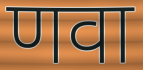
णवा